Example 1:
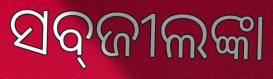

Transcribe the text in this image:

ସବ୍‌ଜୀଲଙ୍କା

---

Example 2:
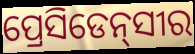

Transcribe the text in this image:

ପ୍ରେସିଡେନ୍‌ସୀର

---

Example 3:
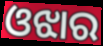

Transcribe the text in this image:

ଓଝାର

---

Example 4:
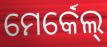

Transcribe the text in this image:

ମେର୍କେଲ୍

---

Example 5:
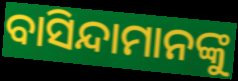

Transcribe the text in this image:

ବାସିନ୍ଦାମାନଙ୍କୁ